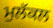
ਮੁਲੱਕਲ